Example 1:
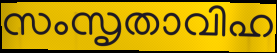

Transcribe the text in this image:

സംസൃതാവിഹ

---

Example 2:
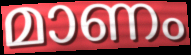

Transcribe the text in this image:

മാണം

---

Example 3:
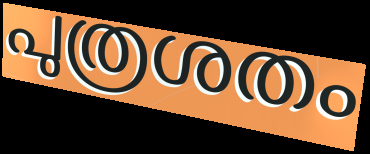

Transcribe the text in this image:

പുത്രശതം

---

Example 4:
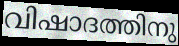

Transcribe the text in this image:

വിഷാദത്തിനു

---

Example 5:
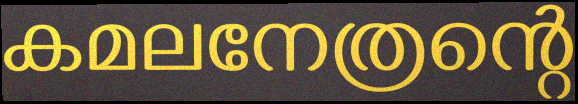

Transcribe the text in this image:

കമലനേത്രന്റെ